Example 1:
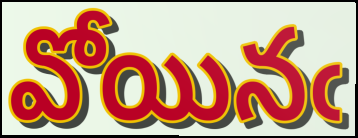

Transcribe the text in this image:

వోయినఁ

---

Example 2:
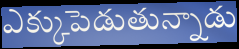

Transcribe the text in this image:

ఎక్కుపెడుతున్నాడు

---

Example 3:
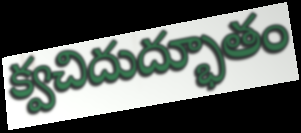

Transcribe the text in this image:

క్వచిదుద్భూతం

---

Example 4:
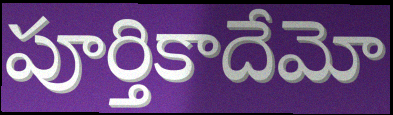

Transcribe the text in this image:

పూర్తికాదేమో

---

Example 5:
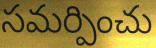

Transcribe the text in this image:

సమర్పించు